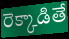
రెక్కాడితే